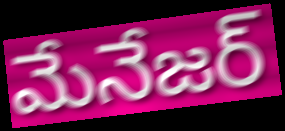
మేనేజర్